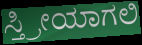
ಸ್ತ್ರೀಯಾಗಲಿ